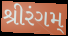
શ્રીરંગમ્